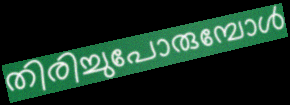
തിരിച്ചുപോരുമ്പോൾ